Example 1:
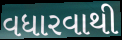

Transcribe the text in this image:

વધારવાથી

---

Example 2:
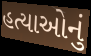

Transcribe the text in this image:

હત્યાઓનું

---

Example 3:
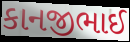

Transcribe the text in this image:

કાનજીભાઈ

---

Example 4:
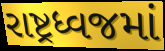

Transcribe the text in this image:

રાષ્ટ્રધ્વજમાં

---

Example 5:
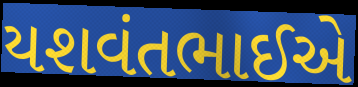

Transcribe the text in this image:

યશવંતભાઈએ